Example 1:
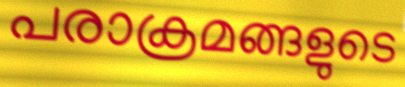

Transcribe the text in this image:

പരാക്രമങ്ങളുടെ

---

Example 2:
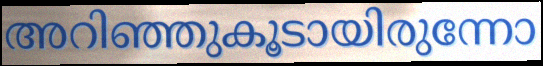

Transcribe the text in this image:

അറിഞ്ഞുകൂടായിരുന്നോ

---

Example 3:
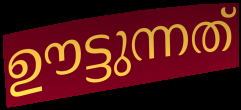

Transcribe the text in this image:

ഊട്ടുന്നത്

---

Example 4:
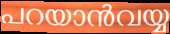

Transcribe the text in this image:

പറയാൻവയ്യ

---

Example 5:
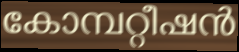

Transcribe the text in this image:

കോമ്പറ്റീഷൻ